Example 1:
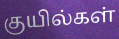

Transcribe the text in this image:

குயில்கள்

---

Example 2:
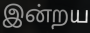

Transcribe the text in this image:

இன்றய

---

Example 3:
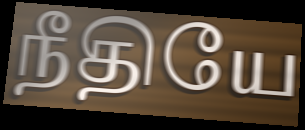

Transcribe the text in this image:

நீதியே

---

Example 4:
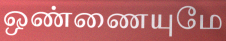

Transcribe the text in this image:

ஒண்ணையுமே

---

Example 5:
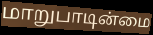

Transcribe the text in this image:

மாறுபாடின்மை